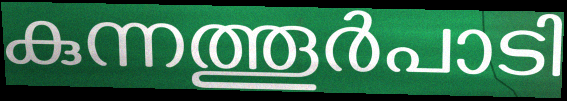
കുന്നത്തൂർപാടി